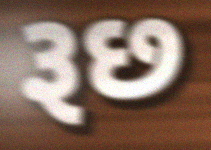
રૂછ